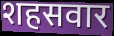
शहसवार